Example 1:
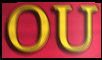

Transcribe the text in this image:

OU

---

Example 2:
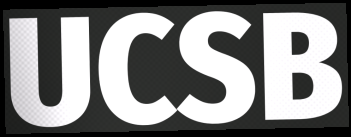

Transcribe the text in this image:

UCSB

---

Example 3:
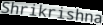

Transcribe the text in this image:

Shrikrishna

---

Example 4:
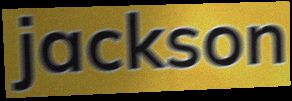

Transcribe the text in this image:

jackson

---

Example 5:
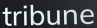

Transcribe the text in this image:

tribune